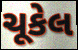
ચૂકેલ